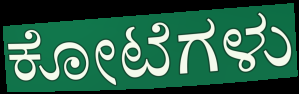
ಕೋಟೆಗಳು